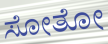
ಸೋತೋ